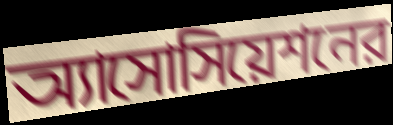
অ্যাসোসিয়েশনের